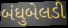
બંધુબેલડી